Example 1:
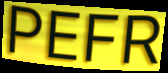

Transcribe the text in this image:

PEFR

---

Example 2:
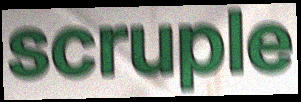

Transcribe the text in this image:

scruple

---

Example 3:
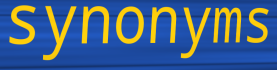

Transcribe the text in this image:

synonyms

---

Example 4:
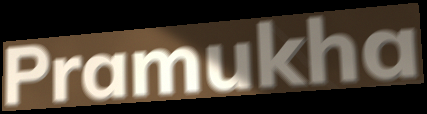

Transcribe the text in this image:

Pramukha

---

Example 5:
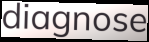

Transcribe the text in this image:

diagnose